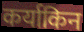
कर्याकिन